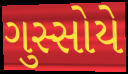
ગુસ્સોયે